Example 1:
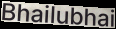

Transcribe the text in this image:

Bhailubhai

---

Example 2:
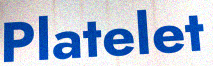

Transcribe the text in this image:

Platelet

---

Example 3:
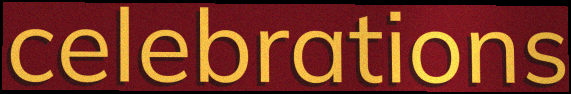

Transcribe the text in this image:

celebrations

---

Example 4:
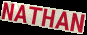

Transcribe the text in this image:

NATHAN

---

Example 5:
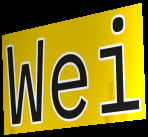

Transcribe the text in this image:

Wei